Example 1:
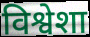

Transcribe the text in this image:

विश्वेशा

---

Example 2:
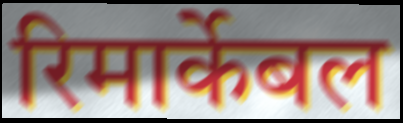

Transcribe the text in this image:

रिमार्केबल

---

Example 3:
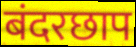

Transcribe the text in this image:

बंदरछाप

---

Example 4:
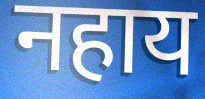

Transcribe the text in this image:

नहाय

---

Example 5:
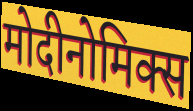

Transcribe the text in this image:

मोदीनोमिक्स